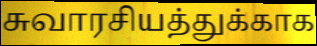
சுவாரசியத்துக்காக